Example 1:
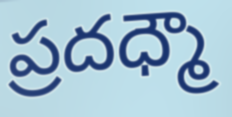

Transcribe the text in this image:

ప్రదధ్మౌ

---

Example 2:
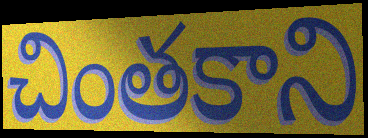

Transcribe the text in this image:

చింతకాని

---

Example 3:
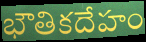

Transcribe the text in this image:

భౌతికదేహం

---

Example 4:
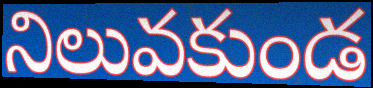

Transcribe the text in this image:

నిలువకుండ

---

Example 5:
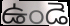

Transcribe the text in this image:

ఉండె